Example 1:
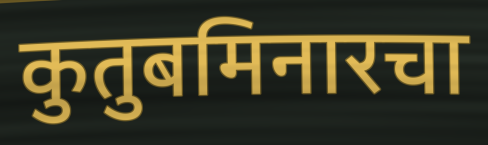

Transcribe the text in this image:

कुतुबमिनारचा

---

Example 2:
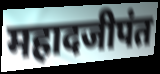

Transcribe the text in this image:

महादजीपंत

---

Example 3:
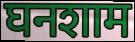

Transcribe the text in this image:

घनशाम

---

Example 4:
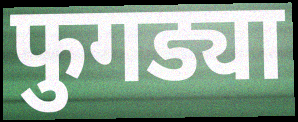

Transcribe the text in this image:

फुगड्या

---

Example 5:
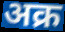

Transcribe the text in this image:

अक्र